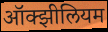
ऑक्झीलियम